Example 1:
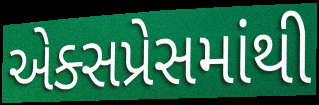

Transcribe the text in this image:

એક્સપ્રેસમાંથી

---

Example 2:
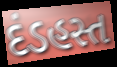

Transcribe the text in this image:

દંડહસ્ત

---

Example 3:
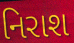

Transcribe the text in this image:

નિરાશ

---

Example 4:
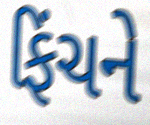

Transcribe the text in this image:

ફિંચને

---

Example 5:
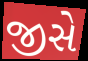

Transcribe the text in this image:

જીસે